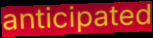
anticipated